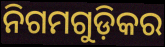
ନିଗମଗୁଡ଼ିକର